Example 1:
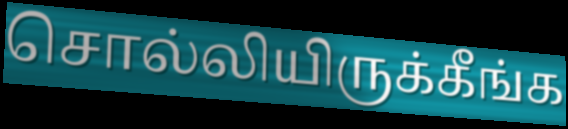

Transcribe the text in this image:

சொல்லியிருக்கீங்க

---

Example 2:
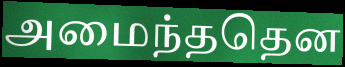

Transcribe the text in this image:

அமைந்ததென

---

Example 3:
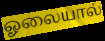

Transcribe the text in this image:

ஓலையால்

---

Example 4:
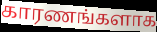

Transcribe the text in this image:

காரணங்களாக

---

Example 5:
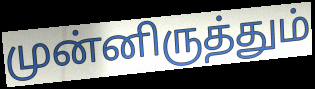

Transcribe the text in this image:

முன்னிருத்தும்